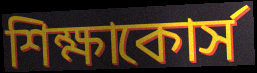
শিক্ষাকোর্স